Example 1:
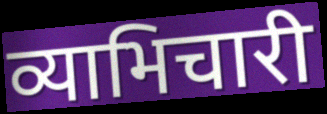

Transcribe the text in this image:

व्याभिचारी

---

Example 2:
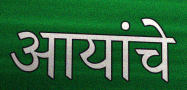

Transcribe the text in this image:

आयांचे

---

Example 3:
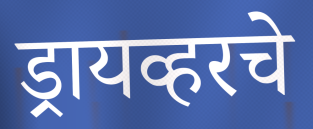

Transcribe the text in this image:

ड्रायव्हरचे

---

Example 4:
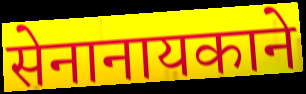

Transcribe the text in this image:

सेनानायकाने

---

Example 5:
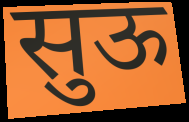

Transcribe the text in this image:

सुऊ